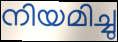
നിയമിച്ചു